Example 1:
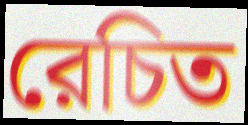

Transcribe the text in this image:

রেচিত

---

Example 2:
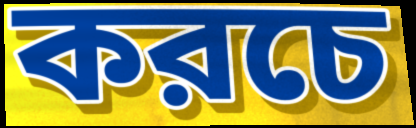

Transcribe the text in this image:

করচে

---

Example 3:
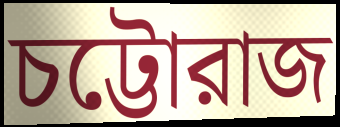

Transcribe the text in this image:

চট্টোরাজ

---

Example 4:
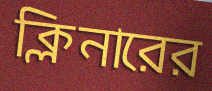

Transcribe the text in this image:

ক্লিনারের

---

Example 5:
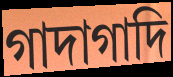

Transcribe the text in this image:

গাদাগাদি